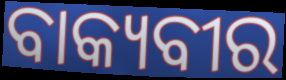
ବାକ୍ୟବୀର